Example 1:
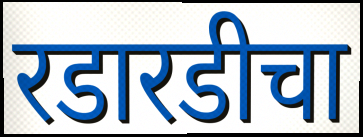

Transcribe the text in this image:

रडारडीचा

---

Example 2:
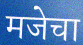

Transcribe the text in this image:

मजेचा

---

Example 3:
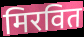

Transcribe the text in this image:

मिरवित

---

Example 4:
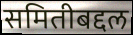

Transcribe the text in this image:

समितीबद्दल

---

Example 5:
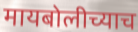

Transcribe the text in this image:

मायबोलीच्याच